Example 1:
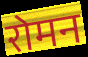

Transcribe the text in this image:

रोमन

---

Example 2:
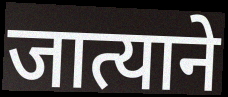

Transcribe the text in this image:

जात्याने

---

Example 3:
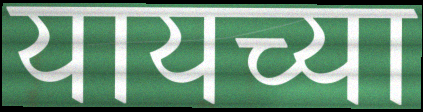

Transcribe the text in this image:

यायच्या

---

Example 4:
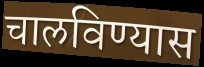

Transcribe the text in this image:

चालविण्यास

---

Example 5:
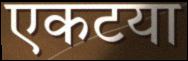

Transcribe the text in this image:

एकटया